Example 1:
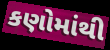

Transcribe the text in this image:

કણોમાંથી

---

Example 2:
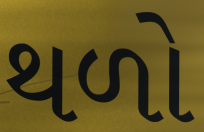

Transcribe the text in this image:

થળો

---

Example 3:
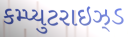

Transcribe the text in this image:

કમ્પ્યુટરાઇઝ્ડ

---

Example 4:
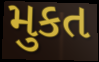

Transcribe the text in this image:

મુકત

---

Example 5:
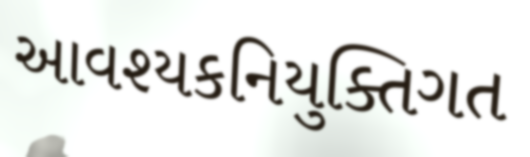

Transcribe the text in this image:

આવશ્યકનિયુક્તિગત